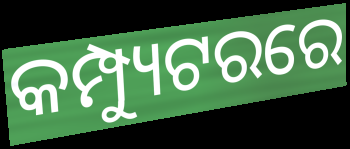
କମ୍ପ୍ୟୁଟରରେ